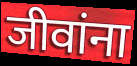
जीवांना